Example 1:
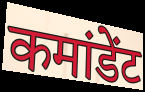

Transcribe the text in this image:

कमांडेंट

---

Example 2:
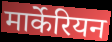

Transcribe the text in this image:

मार्केरियन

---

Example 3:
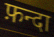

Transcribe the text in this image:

फ़न्दा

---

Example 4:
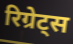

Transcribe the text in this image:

रिग्रेट्स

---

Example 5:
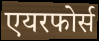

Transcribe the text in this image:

एयरफोर्स